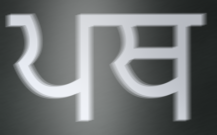
ਪਥ